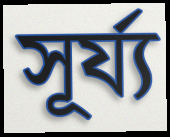
সূৰ্য্য